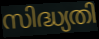
സിദ്ധ്യതി